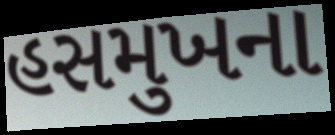
હસમુખના